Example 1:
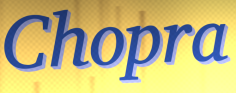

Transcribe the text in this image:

Chopra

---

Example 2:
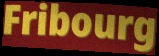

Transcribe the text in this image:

Fribourg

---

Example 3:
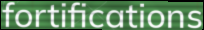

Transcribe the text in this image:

fortifications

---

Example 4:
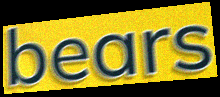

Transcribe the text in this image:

bears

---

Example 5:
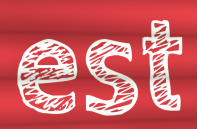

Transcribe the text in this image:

est